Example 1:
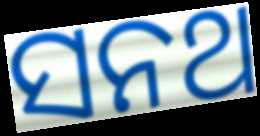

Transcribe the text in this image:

ସନଥ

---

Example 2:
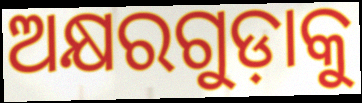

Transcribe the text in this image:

ଅକ୍ଷରଗୁଡ଼ାକୁ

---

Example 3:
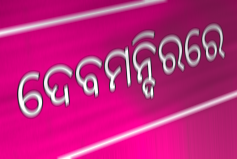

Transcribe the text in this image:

ଦେବମନ୍ଦିରରେ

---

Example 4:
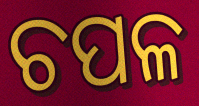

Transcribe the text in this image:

ଚପଳ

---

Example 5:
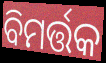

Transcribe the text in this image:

ବିମର୍ତ୍ତକ